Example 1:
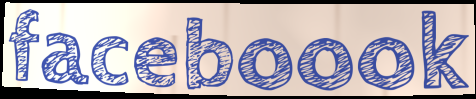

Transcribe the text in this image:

faceboook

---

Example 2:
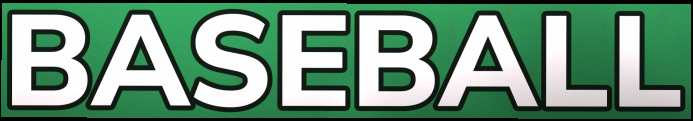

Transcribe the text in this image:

BASEBALL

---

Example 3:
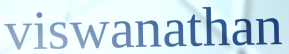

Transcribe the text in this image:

viswanathan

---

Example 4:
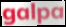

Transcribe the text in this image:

galpa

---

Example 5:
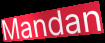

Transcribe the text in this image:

Mandan